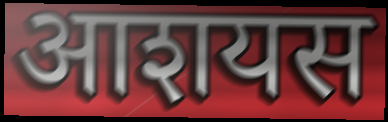
आशयस